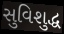
સુવિશુદ્ધ